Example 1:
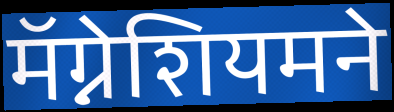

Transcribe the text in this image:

मॅग्नेशियमने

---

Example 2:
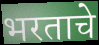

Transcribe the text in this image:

भरताचे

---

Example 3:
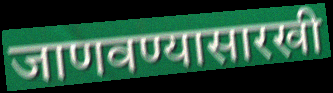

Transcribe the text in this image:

जाणवण्यासारखी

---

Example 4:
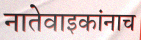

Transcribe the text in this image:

नातेवाइकांनाच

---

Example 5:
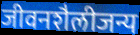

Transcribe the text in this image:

जीवनशैलीजन्य